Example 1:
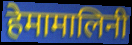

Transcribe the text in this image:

हेमामालिनी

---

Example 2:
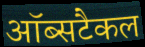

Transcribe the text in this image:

ऑब्सटैकल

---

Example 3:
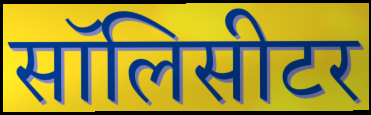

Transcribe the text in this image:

सॉलिसीटर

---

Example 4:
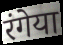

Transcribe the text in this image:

रंगेया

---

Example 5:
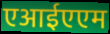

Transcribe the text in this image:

एआईएएम